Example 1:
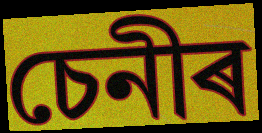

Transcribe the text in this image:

চেনীৰ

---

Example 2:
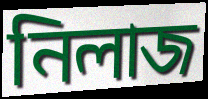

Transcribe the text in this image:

নিলাজ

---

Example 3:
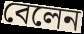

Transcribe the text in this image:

বেলেন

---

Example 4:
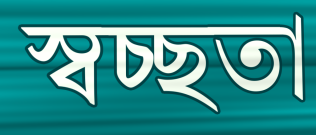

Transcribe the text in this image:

স্বচ্ছতা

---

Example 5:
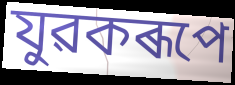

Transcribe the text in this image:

যুৱকৰূপে